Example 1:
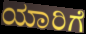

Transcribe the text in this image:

ಯಾರಿಗೆ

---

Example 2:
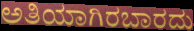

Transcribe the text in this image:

ಅತಿಯಾಗಿರಬಾರದು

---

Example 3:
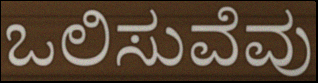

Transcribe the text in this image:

ಒಲಿಸುವೆವು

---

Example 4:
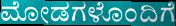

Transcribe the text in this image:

ಮೋಡಗಳೊಂದಿಗೆ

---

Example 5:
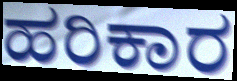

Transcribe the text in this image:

ಹರಿಕಾರ